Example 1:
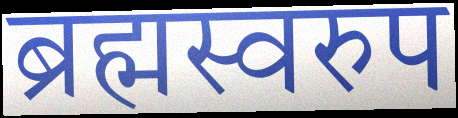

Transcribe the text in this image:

ब्रह्मस्वरुप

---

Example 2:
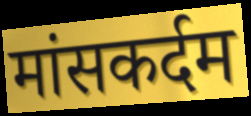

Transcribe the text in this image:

मांसकर्दम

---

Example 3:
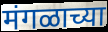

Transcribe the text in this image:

मंगळाच्या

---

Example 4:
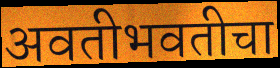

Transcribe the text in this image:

अवतीभवतीचा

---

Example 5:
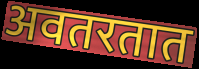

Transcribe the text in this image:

अवतरतात